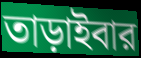
তাড়াইবার